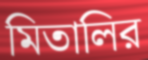
মিতালির